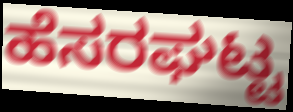
ಹೆಸರಘಟ್ಟ